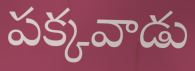
పక్కవాడు